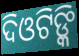
ଦିଓଟିଙ୍କି